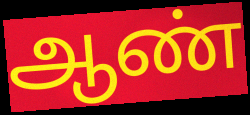
ஆண்